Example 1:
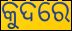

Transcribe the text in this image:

କୁଦରେ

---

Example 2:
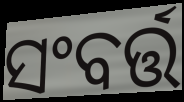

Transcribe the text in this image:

ସଂବର୍ତ୍ତ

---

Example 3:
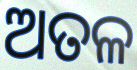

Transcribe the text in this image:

ଅତଳ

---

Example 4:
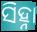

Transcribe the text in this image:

ସିହ୍ନା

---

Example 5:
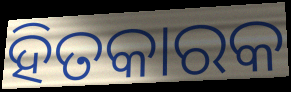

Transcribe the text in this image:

ହିତକାରକ